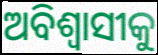
ଅବିଶ୍ୱାସୀକୁ